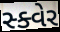
સ્ક્વેર